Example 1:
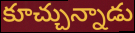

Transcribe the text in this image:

కూచ్చున్నాడు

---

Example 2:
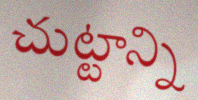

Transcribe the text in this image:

చుట్టాన్ని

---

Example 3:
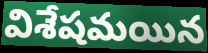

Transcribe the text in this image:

విశేషమయిన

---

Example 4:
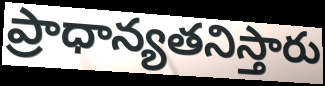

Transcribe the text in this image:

ప్రాధాన్యతనిస్తారు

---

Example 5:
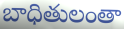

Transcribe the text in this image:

బాధితులంతా